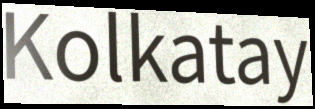
Kolkatay